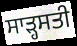
ਸਾੜ੍ਹਸਤੀ